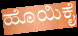
ಹೊಯಿಕೈ